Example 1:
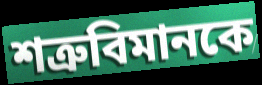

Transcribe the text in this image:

শত্রুবিমানকে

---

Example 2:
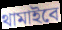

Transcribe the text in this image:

থামাইবে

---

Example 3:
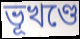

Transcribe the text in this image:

ভূখণ্ডে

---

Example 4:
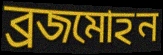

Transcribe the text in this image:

ব্রজমোহন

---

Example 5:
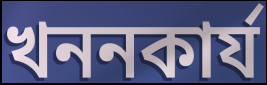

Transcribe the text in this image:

খননকার্য